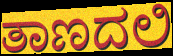
ತಾಣದಲಿ